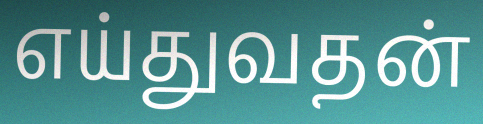
எய்துவதன்